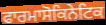
ਫਾਰਮਾਸੋਕਿਨੇਟਿਕ